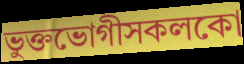
ভুক্তভোগীসকলকো